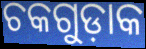
ଚକଗୁଡ଼ାକ